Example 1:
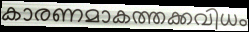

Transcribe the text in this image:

കാരണമാകത്തക്കവിധം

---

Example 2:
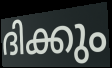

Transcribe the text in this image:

ദിക്കും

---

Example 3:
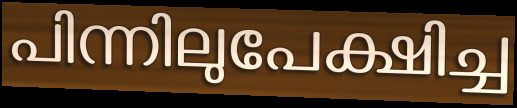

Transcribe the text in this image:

പിന്നിലുപേക്ഷിച്ച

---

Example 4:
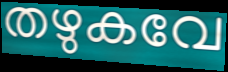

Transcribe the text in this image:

തഴുകവേ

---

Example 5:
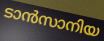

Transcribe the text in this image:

ടാൻസാനിയ